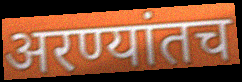
अरण्यांतच